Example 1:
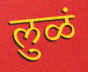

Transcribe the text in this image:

लुळं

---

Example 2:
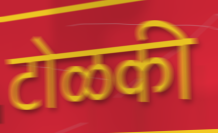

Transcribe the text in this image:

टोळकी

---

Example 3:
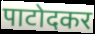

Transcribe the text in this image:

पाटोदकर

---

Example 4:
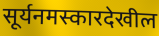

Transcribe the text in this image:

सूर्यनमस्कारदेखील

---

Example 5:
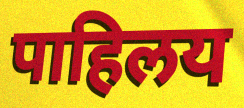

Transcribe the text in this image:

पाहिलय